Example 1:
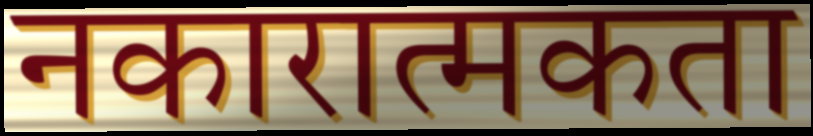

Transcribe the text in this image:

नकारात्मकता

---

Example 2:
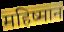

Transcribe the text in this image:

महिष्मान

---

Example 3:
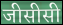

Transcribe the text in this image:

जीसीसी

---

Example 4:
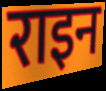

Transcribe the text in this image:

राइन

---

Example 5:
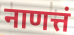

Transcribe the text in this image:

नाणत्तं